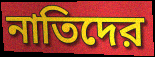
নাতিদের